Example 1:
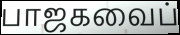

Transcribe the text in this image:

பாஜகவைப்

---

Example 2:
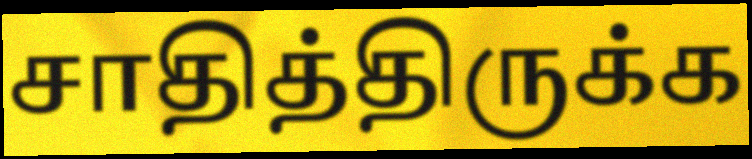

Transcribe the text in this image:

சாதித்திருக்க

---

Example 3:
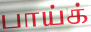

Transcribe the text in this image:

பாய்க்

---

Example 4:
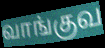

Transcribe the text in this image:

வாங்குவ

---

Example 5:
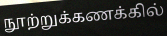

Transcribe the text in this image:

நூற்றுக்கணக்கில்